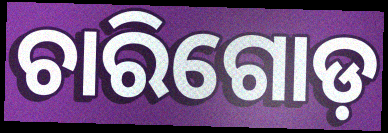
ଚାରିଗୋଡ଼